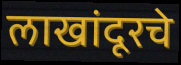
लाखांदूरचे